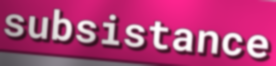
subsistance